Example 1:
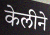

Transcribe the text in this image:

केलीने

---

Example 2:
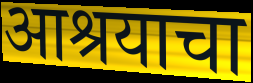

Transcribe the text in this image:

आश्रयाचा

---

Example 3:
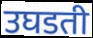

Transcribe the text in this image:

उघडती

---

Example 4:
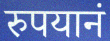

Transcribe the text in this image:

रुपयानं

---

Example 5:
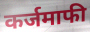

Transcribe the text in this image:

कर्जमाफी